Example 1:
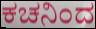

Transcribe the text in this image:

ಕಚನಿಂದ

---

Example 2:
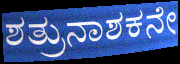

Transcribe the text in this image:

ಶತ್ರುನಾಶಕನೇ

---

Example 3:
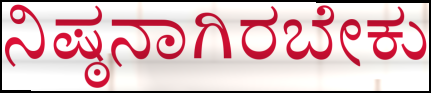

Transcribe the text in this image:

ನಿಷ್ಠನಾಗಿರಬೇಕು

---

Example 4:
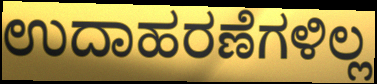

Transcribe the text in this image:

ಉದಾಹರಣೆಗಳಿಲ್ಲ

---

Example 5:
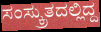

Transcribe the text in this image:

ಸಂಸ್ಕ್ರುತದಲ್ಲಿದ್ದ